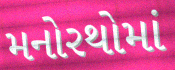
મનોરથોમાં